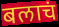
बलाचं